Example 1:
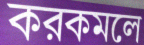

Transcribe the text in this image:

করকমলে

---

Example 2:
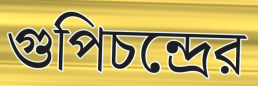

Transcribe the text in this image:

গুপিচন্দ্রের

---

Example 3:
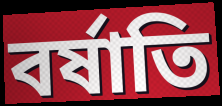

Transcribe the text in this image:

বর্ষাতি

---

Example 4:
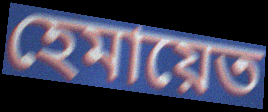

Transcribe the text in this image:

হেমায়েত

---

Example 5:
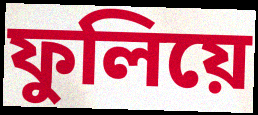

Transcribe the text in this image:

ফুলিয়ে